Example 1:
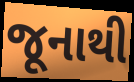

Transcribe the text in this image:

જૂનાથી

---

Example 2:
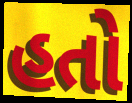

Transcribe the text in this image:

હતો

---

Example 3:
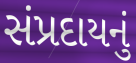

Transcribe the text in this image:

સંપ્રદાયનું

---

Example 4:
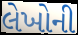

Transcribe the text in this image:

લેખોની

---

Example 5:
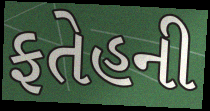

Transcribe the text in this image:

ફતેહની